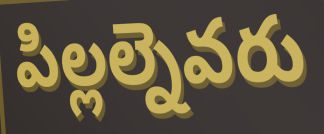
పిల్లల్నెవరు